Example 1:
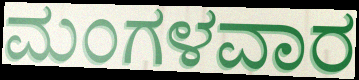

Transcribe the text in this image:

ಮಂಗಳವಾರ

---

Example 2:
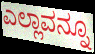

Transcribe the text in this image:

ಎಲ್ಲಾವನ್ನೂ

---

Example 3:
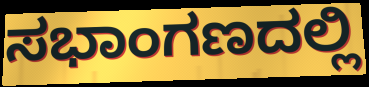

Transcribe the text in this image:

ಸಭಾಂಗಣದಲ್ಲಿ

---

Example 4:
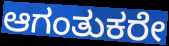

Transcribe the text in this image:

ಆಗಂತುಕರೇ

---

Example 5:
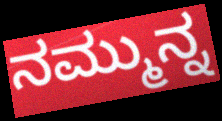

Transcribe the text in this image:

ನಮ್ಮುನ್ನ